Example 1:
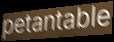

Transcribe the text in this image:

petantable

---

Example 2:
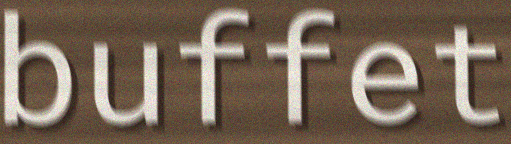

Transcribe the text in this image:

buffet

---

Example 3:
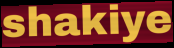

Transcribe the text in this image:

shakiye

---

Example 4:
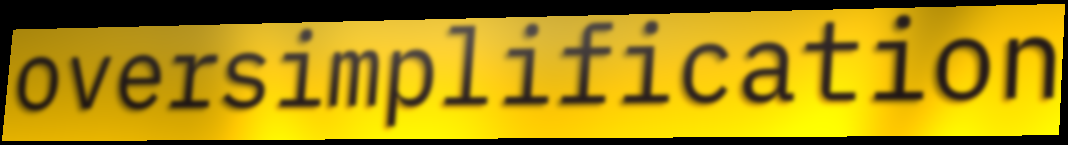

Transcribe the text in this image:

oversimplification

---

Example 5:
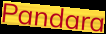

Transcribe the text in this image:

Pandara